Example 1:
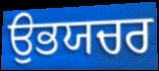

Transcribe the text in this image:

ਉਭਯਚਰ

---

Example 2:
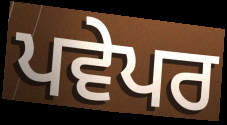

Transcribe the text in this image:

ਪਵੇਪਰ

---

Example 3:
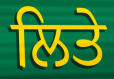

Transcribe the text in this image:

ਲਿਤੇ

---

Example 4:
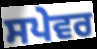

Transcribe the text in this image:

ਸਪੇਵਰ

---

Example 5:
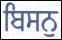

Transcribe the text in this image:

ਬਿਸਨੁ